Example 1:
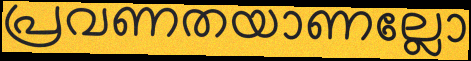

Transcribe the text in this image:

പ്രവണതയാണല്ലോ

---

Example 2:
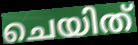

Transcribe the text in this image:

ചെയിത്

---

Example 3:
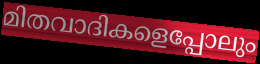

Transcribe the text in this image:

മിതവാദികളെപ്പോലും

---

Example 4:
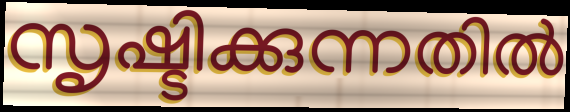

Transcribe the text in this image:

സൃഷ്ടിക്കുന്നതിൽ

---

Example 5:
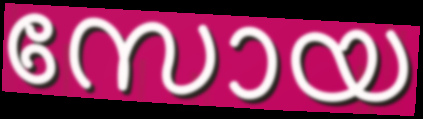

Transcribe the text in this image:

സോയ